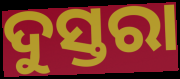
ଦୁସ୍ତରା